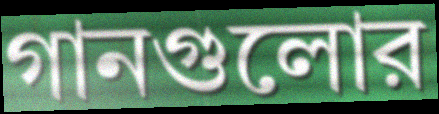
গানগুলোর